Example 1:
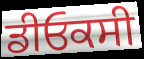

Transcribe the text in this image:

ਡੀਓਕਸੀ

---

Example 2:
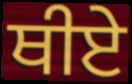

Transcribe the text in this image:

ਥੀਏ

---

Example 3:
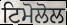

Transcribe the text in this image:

ਟਿਮੋਲੋਲ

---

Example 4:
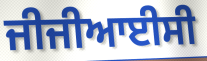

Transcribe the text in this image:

ਜੀਜੀਆਈਸੀ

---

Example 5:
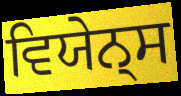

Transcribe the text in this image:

ਵਿਯੇਨ੍ਸ